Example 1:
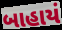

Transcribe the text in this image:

બાહાયં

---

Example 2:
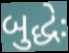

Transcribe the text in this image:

બુદ્ધેઃ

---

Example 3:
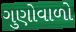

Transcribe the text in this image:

ગુણોવાળો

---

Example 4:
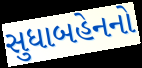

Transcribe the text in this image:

સુધાબહેનનો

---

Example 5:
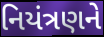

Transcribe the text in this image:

નિયંત્રણને